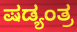
ಷಡ್ಯಂತ್ರ